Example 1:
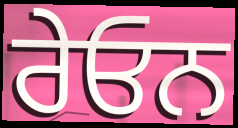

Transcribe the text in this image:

ਰੇਓਨ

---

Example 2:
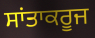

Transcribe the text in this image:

ਸਾਂਤਾਕਰੂਜ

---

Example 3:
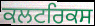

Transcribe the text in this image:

ਕਲਟਰਿਕਸ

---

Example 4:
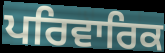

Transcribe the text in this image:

ਪਰਿਵਾਰਿਕ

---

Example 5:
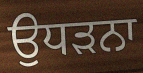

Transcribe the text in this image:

ਉਧੜਨਾ